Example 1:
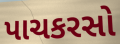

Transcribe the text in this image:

પાચકરસો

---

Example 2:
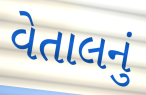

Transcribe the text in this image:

વેતાલનું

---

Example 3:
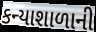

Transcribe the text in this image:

કન્યાશાળાની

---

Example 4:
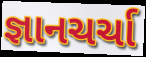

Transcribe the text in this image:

જ્ઞાનચર્ચા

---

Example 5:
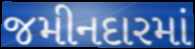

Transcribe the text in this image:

જમીનદારમાં